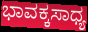
ಭಾವಕ್ಕಸಾಧ್ಯ